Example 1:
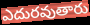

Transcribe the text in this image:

ఎదురవుతారు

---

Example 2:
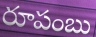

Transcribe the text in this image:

రూపంబు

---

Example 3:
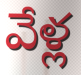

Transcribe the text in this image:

వేళ్ల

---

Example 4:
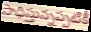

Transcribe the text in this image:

సాధిస్తున్నప్పటికీ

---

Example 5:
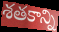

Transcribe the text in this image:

శతకాన్ని